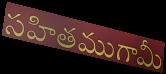
సహితముగామీ